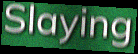
Slaying